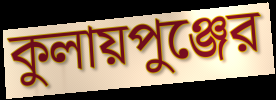
কুলায়পুঞ্জের